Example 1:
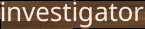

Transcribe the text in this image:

investigator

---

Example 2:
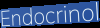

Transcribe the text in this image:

Endocrinol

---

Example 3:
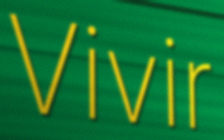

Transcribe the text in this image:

Vivir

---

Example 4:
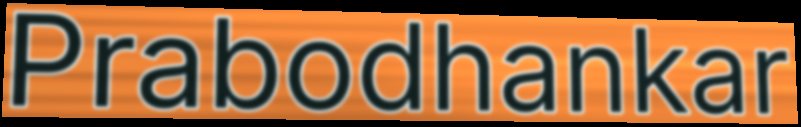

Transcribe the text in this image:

Prabodhankar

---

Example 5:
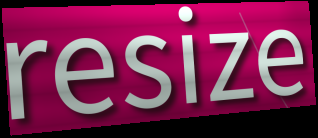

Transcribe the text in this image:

resize